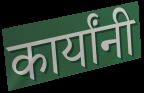
कार्यांनी